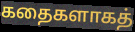
கதைகளாகத்